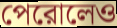
পেরোলেও